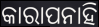
କାରାପନାହି